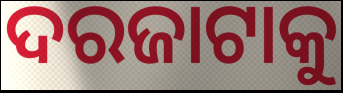
ଦରଜାଟାକୁ